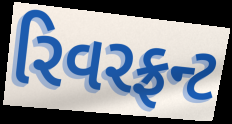
રિવરફ્રન્ટ